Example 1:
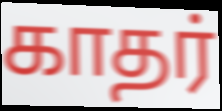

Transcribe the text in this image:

காதர்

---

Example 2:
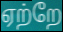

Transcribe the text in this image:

ஏற்றே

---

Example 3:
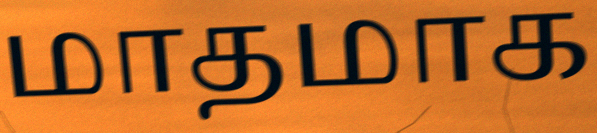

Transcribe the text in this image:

மாதமாக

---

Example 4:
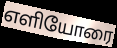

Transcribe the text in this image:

எளியோரை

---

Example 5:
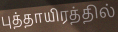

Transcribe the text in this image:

புத்தாயிரத்தில்